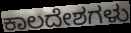
ಕಾಲದೇಶಗಳು